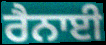
ਰੈਨਾਈ